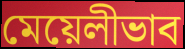
মেয়েলীভাব